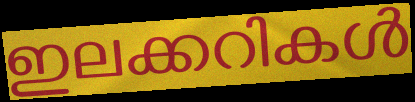
ഇലക്കറികൾ